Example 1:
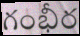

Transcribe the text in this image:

గంభీర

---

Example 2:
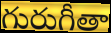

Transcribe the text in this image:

గురుగీతా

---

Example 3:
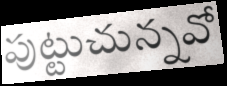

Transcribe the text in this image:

పుట్టుచున్నవో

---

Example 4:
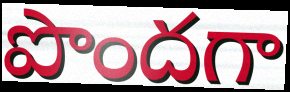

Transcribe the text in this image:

పొందగా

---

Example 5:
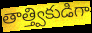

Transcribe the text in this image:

తాత్త్వికుడిగా